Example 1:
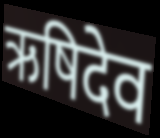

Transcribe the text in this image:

ऋषिदेव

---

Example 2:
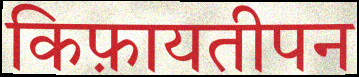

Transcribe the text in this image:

किफ़ायतीपन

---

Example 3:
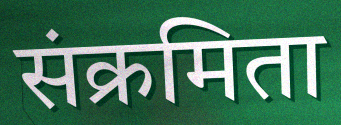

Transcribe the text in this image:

संक्रमिता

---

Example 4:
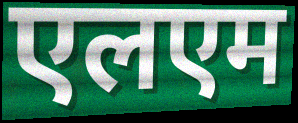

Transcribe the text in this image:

एलएम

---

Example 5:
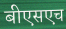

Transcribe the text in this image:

बीएसएच